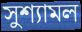
সুশ্যামল